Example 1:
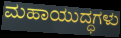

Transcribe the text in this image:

ಮಹಾಯುದ್ಧಗಳು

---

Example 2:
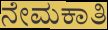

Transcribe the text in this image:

ನೇಮಕಾತಿ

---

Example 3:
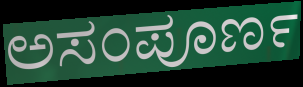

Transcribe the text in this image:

ಅಸಂಪೂರ್ಣ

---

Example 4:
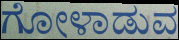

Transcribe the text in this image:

ಗೋಳಾಡುವ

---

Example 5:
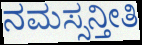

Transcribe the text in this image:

ನಮಸ್ಸನ್ತೀತಿ